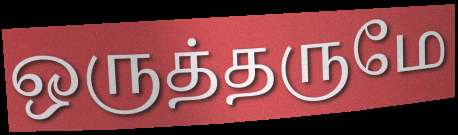
ஒருத்தருமே